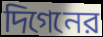
দিগেনের